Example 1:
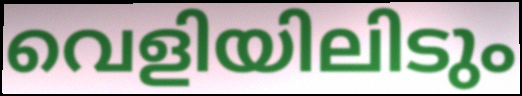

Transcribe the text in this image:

വെളിയിലിടും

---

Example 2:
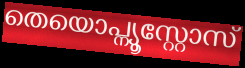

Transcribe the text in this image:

തെയൊപ്ന്യൂസ്റ്റോസ്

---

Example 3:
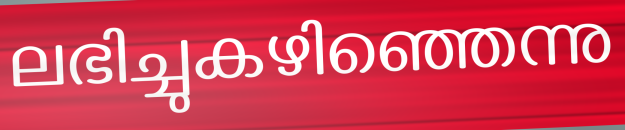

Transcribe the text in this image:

ലഭിച്ചുകഴിഞ്ഞെന്നു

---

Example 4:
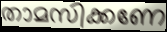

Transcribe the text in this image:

താമസിക്കണേ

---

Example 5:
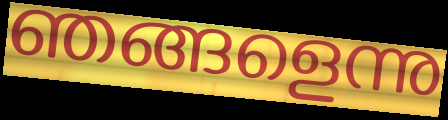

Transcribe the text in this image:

ഞങ്ങളെന്നു